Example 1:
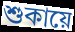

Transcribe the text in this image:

শুকায়ে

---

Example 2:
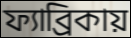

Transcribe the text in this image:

ফ্যাব্রিকায়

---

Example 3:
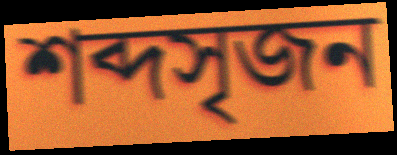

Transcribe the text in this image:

শব্দসৃজন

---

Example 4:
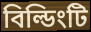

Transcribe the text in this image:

বিল্ডিংটি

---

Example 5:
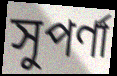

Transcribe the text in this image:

সুপর্ণা